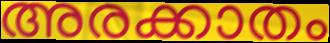
അരക്കാതം